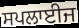
ਸਪਲਾਈਜ